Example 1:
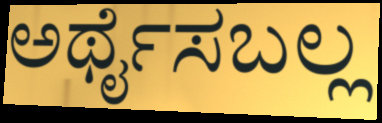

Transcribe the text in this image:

ಅರ್ಥೈಸಬಲ್ಲ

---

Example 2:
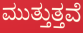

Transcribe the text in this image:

ಮುತ್ತುತ್ತವೆ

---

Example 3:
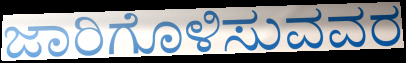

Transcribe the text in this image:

ಜಾರಿಗೊಳಿಸುವವರ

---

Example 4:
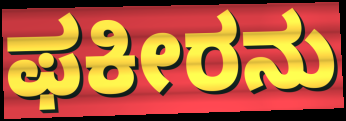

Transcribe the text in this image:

ಫಕೀರನು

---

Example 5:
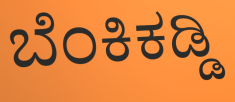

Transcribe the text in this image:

ಬೆಂಕಿಕಡ್ಡಿ